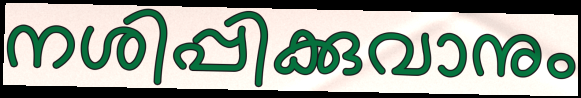
നശിപ്പിക്കുവാനും